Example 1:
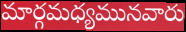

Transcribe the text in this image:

మార్గమధ్యమునవారు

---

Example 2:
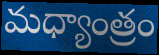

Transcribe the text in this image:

మధ్యాంత్రం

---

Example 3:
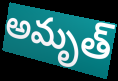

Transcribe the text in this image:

అమృత్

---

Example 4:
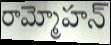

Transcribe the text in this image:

రామ్మోహన్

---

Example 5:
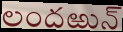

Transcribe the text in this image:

లందఱున్